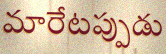
మారేటప్పుడు